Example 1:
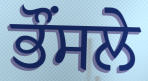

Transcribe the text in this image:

ਭੌਂਸਲੇ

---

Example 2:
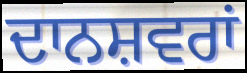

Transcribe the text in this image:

ਦਾਨਸ਼ਵਰਾਂ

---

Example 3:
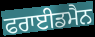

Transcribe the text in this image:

ਫਰਾਈਡਮੈਨ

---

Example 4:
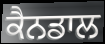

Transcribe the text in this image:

ਕੈਨਡਾਲ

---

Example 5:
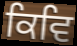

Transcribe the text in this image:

ਕਿਵਿ